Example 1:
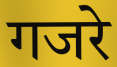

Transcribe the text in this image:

गजरे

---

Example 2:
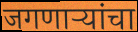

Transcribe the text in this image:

जगणाऱ्यांचा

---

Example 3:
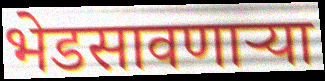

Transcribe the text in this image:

भेडसावणाऱ्या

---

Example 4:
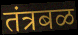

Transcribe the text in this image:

तंत्रबळ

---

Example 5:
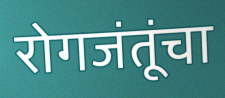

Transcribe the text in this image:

रोगजंतूंचा